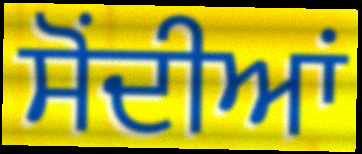
ਸੋਂਦੀਆਂ